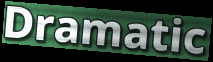
Dramatic